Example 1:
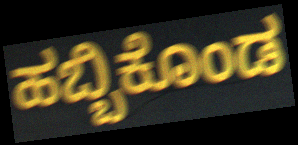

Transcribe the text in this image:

ಹಬ್ಬಿಕೊಂಡ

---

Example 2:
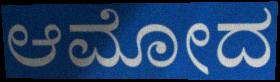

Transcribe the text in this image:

ಆಮೋದ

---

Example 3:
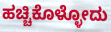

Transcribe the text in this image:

ಹಚ್ಚಿಕೊಳ್ಳೋದು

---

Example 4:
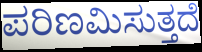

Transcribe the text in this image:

ಪರಿಣಮಿಸುತ್ತದೆ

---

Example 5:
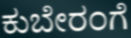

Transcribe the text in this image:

ಕುಬೇರಂಗೆ